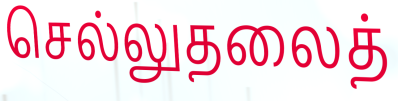
செல்லுதலைத்